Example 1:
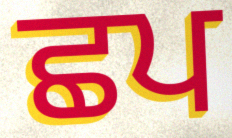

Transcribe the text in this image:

ਛਪ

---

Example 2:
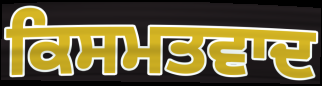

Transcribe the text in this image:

ਕਿਸਮਤਵਾਦ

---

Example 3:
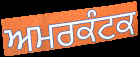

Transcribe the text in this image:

ਅਮਰਕੰਟਕ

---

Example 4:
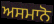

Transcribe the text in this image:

ਅਸਮਾਨੋ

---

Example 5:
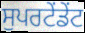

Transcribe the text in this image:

ਸੁਪਰਟੇਂਡੇਂਟ